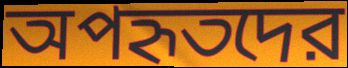
অপহৃতদের